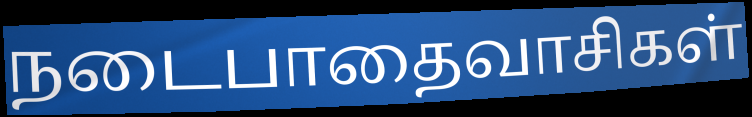
நடைபாதைவாசிகள்